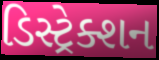
ડિસ્ટ્રેક્શન